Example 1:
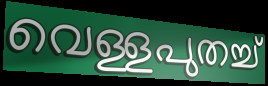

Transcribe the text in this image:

വെള്ളപുതച്ച്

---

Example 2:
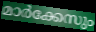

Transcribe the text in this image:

മാർക്കേസും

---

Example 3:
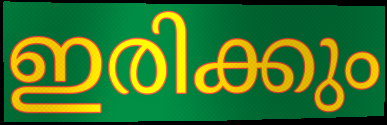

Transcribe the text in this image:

ഇരിക്കും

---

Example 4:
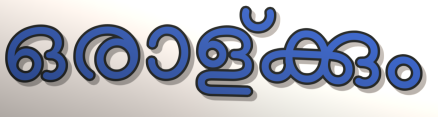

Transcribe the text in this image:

ഒരാള്ക്കും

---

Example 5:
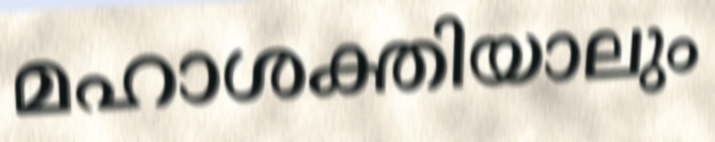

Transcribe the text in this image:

മഹാശക്തിയാലും